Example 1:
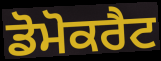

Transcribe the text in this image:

ਡੋਮੋਕਰੈਟ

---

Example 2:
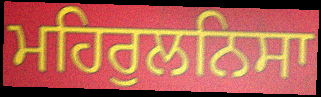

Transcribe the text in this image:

ਮਹਿਰੁਲਨਿਸਾ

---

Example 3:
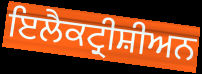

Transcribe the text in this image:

ਇਲੈਕਟ੍ਰੀਸ਼ੀਅਨ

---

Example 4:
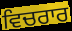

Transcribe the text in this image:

ਵਿਚਰਾਰ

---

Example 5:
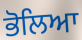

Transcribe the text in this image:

ਭੋਲਿਆ